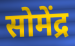
सोमेंद्र